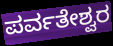
ಪರ್ವತೇಶ್ವರ